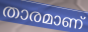
താരമാണ്